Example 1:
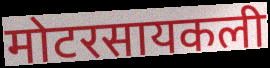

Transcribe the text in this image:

मोटरसायकली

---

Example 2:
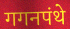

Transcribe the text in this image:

गगनपंथे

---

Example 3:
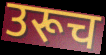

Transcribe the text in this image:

उरूच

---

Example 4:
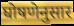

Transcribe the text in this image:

घोषणेनुसार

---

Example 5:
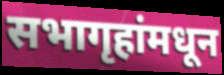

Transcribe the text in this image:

सभागृहांमधून